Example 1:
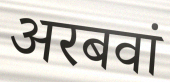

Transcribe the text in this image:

अरबवां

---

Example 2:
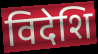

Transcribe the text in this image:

विदेशि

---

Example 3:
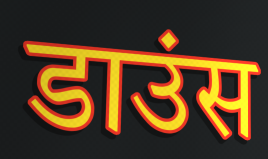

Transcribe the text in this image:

डाउंस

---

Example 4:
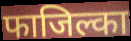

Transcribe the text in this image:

फाजिल्का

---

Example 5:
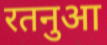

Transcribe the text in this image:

रतनुआ